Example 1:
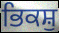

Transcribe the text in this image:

ਭਿਕਸ਼ੁ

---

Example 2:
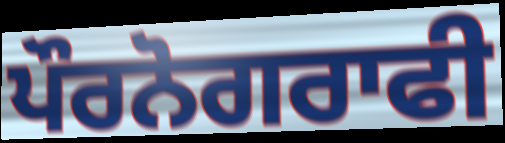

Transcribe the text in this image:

ਪੌਰਨੋਗਰਾਫੀ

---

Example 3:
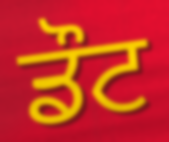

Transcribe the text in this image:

ਡੌਟ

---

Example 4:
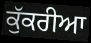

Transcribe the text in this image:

ਕੁੱਕਰੀਆ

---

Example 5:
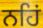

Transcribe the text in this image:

ਨਹਿਂ